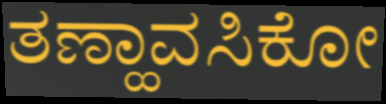
ತಣ್ಹಾವಸಿಕೋ